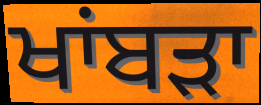
ਖਾਂਬੜਾ